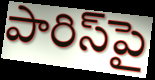
పారిస్‌పై